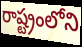
రాష్ట్రంలోని